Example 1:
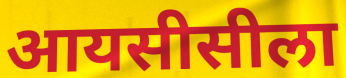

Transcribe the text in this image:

आयसीसीला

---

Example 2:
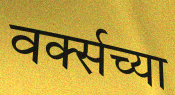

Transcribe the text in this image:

वर्क्‍सच्या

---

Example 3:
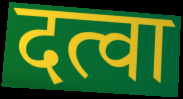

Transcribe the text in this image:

दत्वा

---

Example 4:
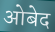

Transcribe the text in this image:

ओबेद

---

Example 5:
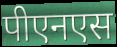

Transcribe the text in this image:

पीएनएस